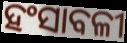
ହଂସାବଳୀ